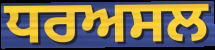
ਧਰਅਸਲ